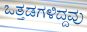
ಒತ್ತಡಗಳಿದ್ದವು